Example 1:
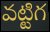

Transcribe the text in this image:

వట్టిగ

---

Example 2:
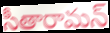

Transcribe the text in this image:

సీతారామన్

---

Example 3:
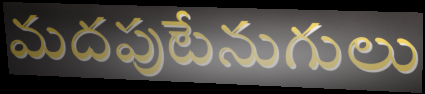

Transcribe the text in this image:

మదపుటేనుగులు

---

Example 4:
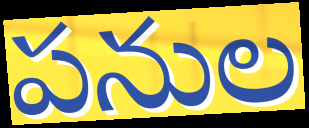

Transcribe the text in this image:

పనుల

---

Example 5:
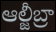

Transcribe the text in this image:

ఆల్జీబ్రా